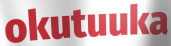
okutuuka